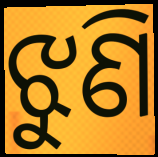
ଝୁଣି